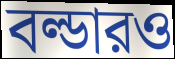
বল্ডারও